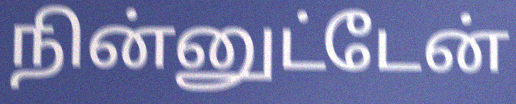
நின்னுட்டேன்